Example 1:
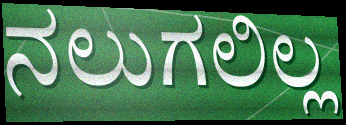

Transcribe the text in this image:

ನಲುಗಲಿಲ್ಲ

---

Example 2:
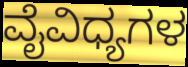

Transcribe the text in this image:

ವೈವಿಧ್ಯಗಳ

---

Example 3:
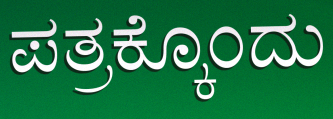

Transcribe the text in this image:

ಪತ್ರಕ್ಕೊಂದು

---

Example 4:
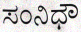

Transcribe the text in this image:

ಸಂನಿಧೌ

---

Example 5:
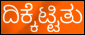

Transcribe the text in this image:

ದಿಕ್ಕೆಟ್ಟಿತು